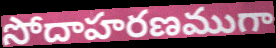
సోదాహరణముగా